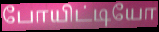
போயிட்டியோ